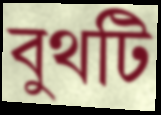
বুথটি